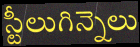
స్టీలుగిన్నెలు